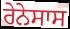
ਰੇਨੇਸਾਸ